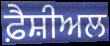
ਫ਼ੈਸ਼ੀਅਲ